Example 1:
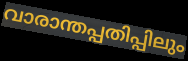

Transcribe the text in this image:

വാരാന്തപ്പതിപ്പിലും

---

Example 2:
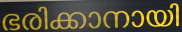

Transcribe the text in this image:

ഭരിക്കാനായി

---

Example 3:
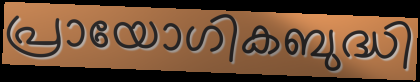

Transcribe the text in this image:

പ്രായോഗികബുദ്ധി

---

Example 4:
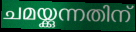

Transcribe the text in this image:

ചമയ്ക്കുന്നതിന്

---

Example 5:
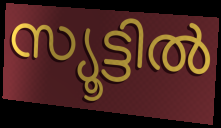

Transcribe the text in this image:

സ്യൂട്ടിൽ